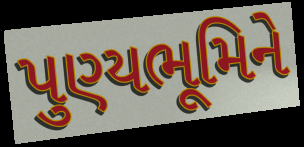
પુણ્યભૂમિને